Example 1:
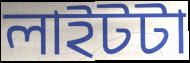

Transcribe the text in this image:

লাইটটা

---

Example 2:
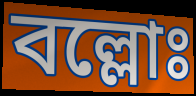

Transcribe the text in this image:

বল্লোঃ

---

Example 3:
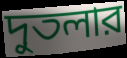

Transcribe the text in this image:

দুতলার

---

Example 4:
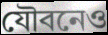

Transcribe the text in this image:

যৌবনেও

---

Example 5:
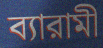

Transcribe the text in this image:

ব্যারামী